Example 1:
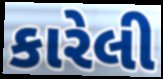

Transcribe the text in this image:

કારેલી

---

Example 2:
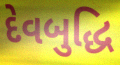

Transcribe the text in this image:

દેવબુદ્ધિ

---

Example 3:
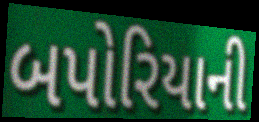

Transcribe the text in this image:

બપોરિયાની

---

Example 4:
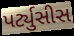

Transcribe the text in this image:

પર્ટ્યુસીસ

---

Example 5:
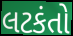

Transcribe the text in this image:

લટકંતો